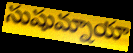
సుషుమ్నాయా